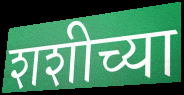
शशीच्या